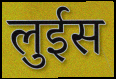
लुईस